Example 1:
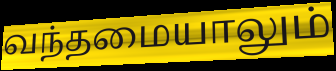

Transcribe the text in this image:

வந்தமையாலும்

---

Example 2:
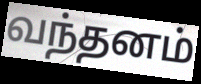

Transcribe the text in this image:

வந்தனம்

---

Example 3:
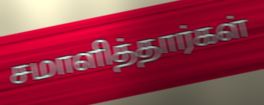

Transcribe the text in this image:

சமாளித்தார்கள்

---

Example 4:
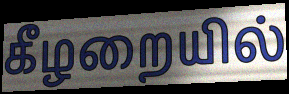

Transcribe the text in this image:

கீழறையில்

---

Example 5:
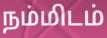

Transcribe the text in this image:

நம்மிடம்